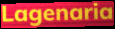
Lagenaria